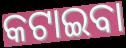
କଟାଇବା